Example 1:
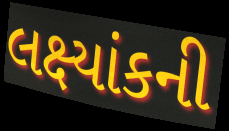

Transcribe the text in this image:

લક્ષ્યાંકની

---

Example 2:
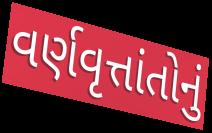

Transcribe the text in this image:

વર્ણવૃત્તાંતોનું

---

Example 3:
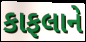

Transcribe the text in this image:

કાફલાને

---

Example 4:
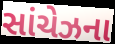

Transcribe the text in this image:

સાંચેઝના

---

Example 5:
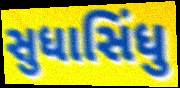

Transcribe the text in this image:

સુધાસિંધુ